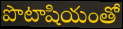
పొటాషియంతో